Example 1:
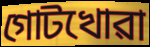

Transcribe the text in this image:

গোটখোৱা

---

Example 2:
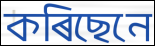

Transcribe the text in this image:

কৰিছেনে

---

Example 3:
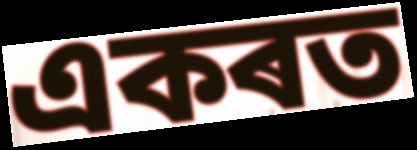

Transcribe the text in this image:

একৰত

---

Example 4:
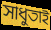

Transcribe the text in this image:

সাধুতাই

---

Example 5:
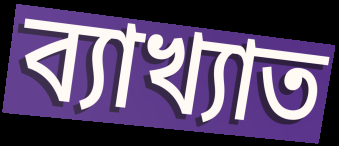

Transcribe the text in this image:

ব্যাখ্যাত